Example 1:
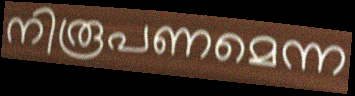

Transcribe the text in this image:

നിരൂപണമെന്ന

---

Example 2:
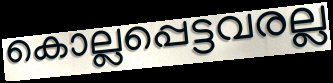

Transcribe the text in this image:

കൊല്ലപ്പെട്ടവരല്ല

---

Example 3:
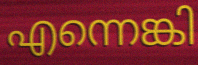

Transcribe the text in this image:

എന്നെങ്കി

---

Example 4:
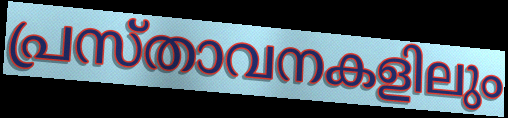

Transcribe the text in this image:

പ്രസ്താവനകളിലും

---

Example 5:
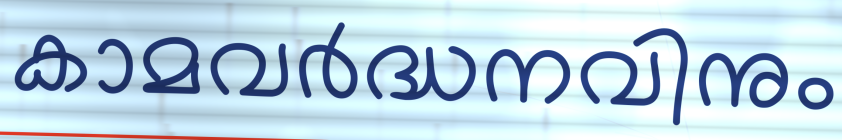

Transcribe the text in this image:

കാമവർദ്ധനവിനും